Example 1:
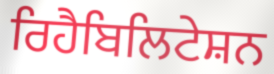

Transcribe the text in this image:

ਰਿਹੈਬਿਲਿਟੇਸ਼ਨ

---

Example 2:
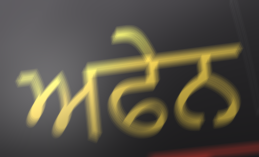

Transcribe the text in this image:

ਅਫੇਨ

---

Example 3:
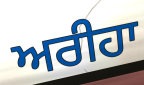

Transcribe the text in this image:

ਅਰੀਹਾ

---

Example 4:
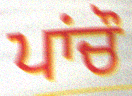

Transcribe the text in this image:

ਪਾਂਚੌ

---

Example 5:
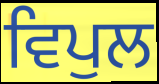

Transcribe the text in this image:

ਵਿਪੁਲ